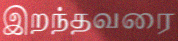
இறந்தவரை